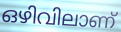
ഒഴിവിലാണ്